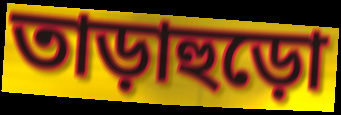
তাড়াহুড়ো